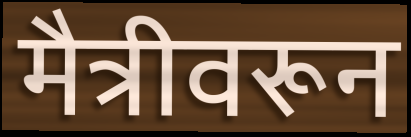
मैत्रीवरून